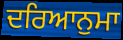
ਦਰਿਆਨੁਮਾ